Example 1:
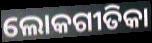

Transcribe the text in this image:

ଲୋକଗୀତିକା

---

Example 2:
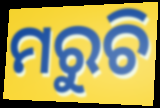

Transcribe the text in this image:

ମରୁଚି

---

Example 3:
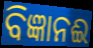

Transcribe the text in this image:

ବିଜ୍ଞାନଈ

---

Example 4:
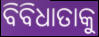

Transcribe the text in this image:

ବିବିଧାତାକୁ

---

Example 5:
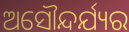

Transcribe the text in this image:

ଅସୌନ୍ଦର୍ଯ୍ୟର